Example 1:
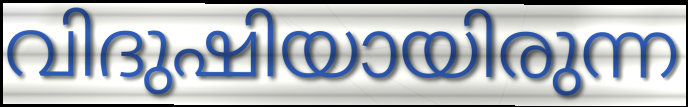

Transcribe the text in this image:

വിദുഷിയായിരുന്ന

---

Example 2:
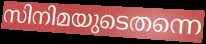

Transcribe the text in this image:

സിനിമയുടെതന്നെ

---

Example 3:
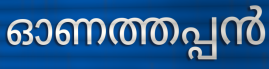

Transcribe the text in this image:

ഓണത്തപ്പൻ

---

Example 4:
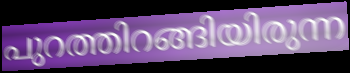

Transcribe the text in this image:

പുറത്തിറങ്ങിയിരുന്ന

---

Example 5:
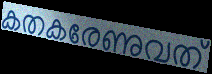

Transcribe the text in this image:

കതകരേണുവത്